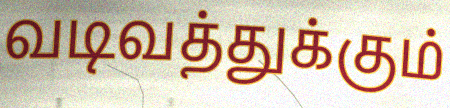
வடிவத்துக்கும்